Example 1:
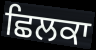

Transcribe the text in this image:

ਛਿਲਕਾ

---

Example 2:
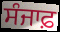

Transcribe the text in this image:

ਸੰਜਾਫ਼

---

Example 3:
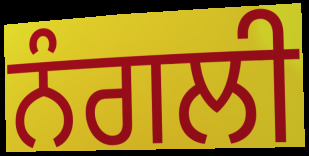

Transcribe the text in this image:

ਨੰਗਲੀ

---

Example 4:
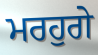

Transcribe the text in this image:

ਮਰਹੁਗੇ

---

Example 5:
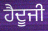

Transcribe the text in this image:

ਹੈਦੂਜੀ